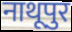
नाथूपुर